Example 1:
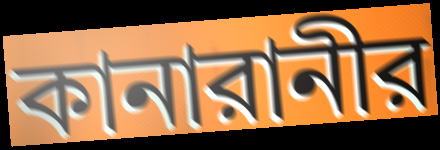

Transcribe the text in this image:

কানারানীর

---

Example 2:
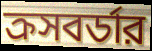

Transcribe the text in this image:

ক্রসবর্ডার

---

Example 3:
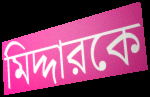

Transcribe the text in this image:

মিদ্দারকে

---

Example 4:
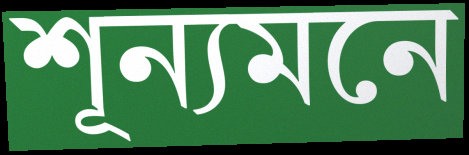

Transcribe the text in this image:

শূন্যমনে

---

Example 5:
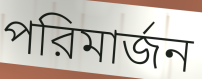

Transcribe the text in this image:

পরিমার্জন